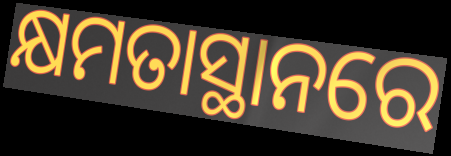
କ୍ଷମତାସ୍ଥାନରେ